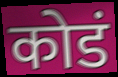
कोडं